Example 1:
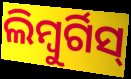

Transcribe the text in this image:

ଲିମ୍ବୁର୍ଗିସ୍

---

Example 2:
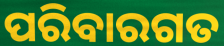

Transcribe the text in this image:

ପରିବାରଗତ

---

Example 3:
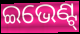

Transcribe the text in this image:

ଇଭେଣ୍ଟ୍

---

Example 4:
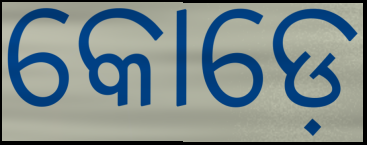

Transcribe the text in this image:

କୋଡ଼େ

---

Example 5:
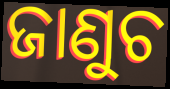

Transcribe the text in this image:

ଜାଣୁଚ